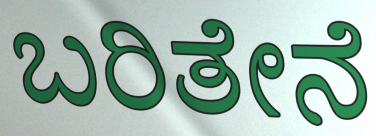
ಬರಿತೇನೆ